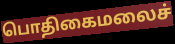
பொதிகைமலைச்